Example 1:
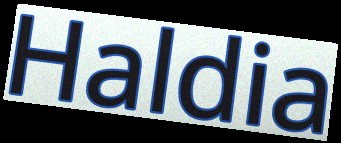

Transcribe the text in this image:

Haldia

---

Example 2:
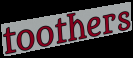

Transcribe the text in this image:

toothers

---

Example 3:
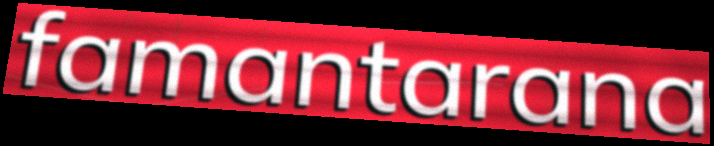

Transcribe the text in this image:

famantarana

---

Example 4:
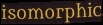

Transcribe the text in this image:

isomorphic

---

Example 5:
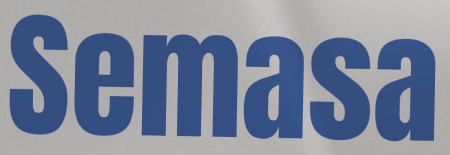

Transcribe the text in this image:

Semasa